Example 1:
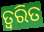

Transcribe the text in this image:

ତ୍ଵରିତ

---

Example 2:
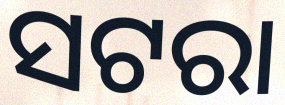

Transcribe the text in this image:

ସଟରା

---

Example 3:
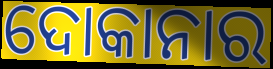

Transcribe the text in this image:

ଦୋକାନାର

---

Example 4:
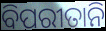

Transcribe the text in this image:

ବିପରୀତାନି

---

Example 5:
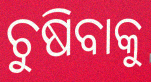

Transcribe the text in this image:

ଚୁଷିବାକୁ